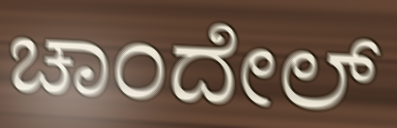
ಚಾಂದೇಲ್